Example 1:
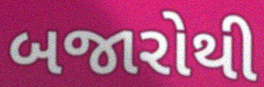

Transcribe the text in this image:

બજારોથી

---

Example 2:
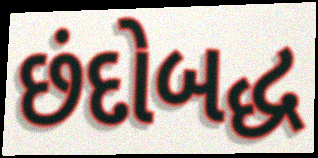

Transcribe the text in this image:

છંદોબદ્ધ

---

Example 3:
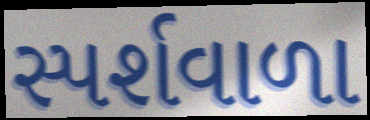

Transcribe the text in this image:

સ્પર્શવાળા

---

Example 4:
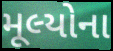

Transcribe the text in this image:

મૂલ્યોના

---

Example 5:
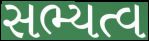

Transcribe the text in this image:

સભ્યત્વ